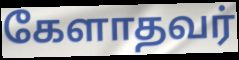
கேளாதவர்